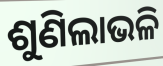
ଶୁଣିଲାଭଳି